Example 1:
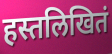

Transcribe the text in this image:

हस्तलिखितं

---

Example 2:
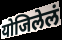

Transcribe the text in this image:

योजिलेलं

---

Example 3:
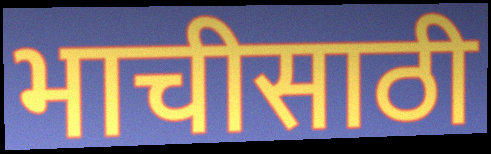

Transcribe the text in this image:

भाचीसाठी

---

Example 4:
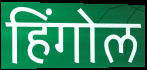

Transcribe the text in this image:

हिंगोल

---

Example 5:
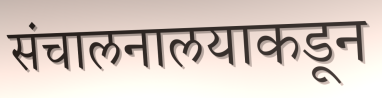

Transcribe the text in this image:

संचालनालयाकडून